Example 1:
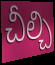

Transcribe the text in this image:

చీల్చి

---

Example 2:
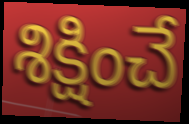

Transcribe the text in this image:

శిక్షించే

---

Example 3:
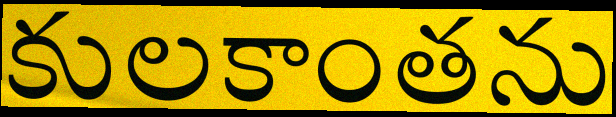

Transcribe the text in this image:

కులకాంతను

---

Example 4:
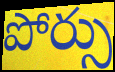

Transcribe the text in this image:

పోర్సు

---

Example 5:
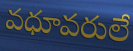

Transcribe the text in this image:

వధూవరులే